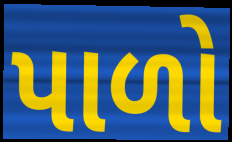
પાળો